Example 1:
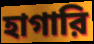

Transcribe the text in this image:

হাগারি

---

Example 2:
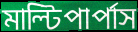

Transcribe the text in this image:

মাল্টিপার্পাস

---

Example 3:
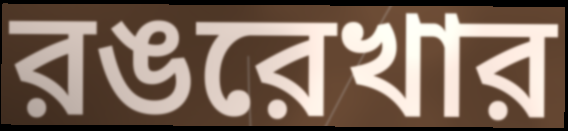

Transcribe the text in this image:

রঙরেখার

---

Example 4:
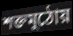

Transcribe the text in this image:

শক্তমুঠোয়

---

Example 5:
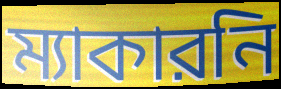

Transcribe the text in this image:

ম্যাকারনি